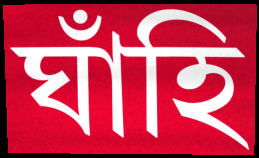
ঘাঁহি